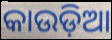
କାଉଡ଼ିଆ